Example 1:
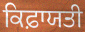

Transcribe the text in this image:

ਕਿਫ਼ਾਯਤੀ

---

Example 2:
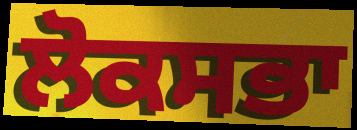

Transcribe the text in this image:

ਲੋਕਸਭਾ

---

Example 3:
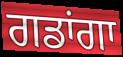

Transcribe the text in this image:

ਗਡਾਂਗਾ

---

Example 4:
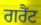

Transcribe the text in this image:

ਗਰੈਂਟ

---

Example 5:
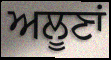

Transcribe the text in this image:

ਅਲੂਣਾਂ